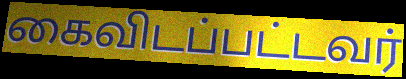
கைவிடப்பட்டவர்